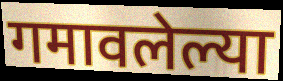
गमावलेल्या